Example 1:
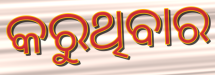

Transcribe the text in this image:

କରୁଥିବାର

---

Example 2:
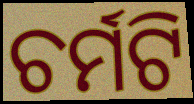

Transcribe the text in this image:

ଚର୍ମଟି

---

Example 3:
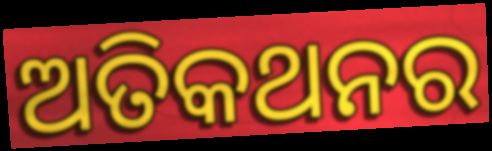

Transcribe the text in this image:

ଅତିକଥନର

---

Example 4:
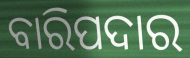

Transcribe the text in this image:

ବାରିପଦାର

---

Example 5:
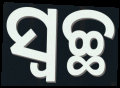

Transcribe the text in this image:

ସ୍ବଚ୍ଛ